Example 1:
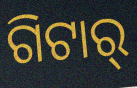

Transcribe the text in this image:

ଗିଟାର୍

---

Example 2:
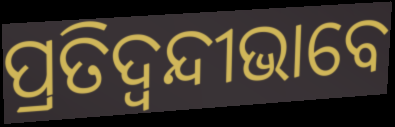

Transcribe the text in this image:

ପ୍ରତିଦ୍ୱନ୍ଦୀଭାବେ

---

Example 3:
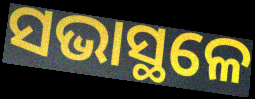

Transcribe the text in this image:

ସଭାସ୍ଥଳେ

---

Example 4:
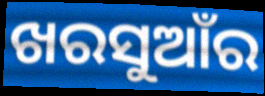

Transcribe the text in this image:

ଖରସୁଆଁର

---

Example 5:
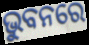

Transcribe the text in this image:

ଭୁବନରେ